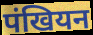
पंखियन